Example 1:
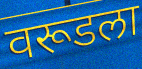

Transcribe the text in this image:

वरूडला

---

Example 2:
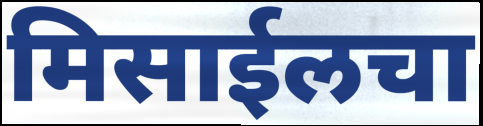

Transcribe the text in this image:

मिसाईलचा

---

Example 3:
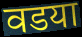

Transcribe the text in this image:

वडया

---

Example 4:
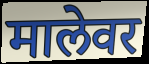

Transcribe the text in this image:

मालेवर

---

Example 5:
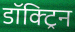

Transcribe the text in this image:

डॉक्ट्रिन